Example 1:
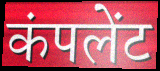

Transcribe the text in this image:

कंपलेंट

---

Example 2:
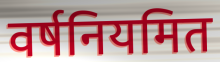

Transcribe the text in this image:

वर्षनियमित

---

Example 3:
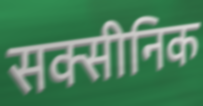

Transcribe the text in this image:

सक्सीनिक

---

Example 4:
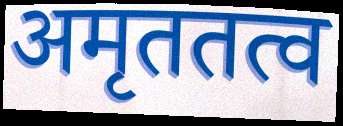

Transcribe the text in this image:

अमृततत्व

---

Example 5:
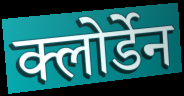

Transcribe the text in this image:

क्लोर्डेन